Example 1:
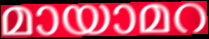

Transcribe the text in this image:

മായാമറ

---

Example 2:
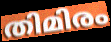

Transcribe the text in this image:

തിമിരം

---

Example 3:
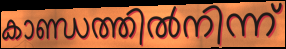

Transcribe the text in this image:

കാണ്ഡത്തിൽനിന്ന്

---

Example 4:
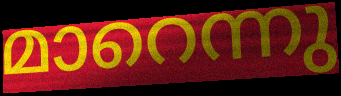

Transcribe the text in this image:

മാറെന്നു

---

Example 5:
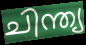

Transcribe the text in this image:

ചിന്ത്യ